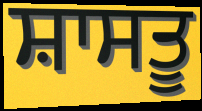
ਸ਼ਾਸਤੂ